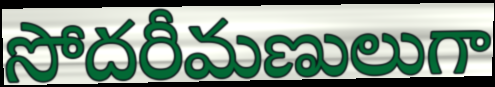
సోదరీమణులుగా